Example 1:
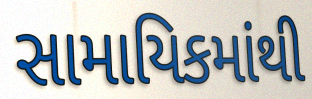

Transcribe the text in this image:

સામાયિકમાંથી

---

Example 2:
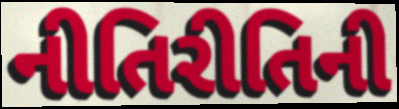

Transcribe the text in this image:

નીતિરીતિની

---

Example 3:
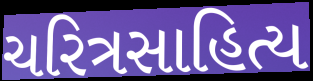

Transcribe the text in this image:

ચરિત્રસાહિત્ય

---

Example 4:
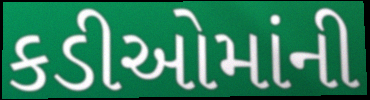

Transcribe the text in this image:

કડીઓમાંની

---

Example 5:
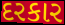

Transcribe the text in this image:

દરકાર